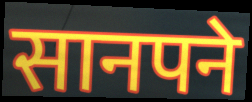
सानपने